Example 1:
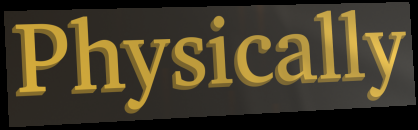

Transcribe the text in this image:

Physically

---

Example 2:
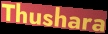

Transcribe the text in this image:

Thushara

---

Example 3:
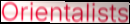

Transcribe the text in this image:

Orientalists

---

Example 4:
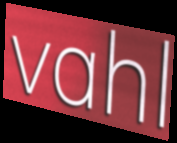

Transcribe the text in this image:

vahl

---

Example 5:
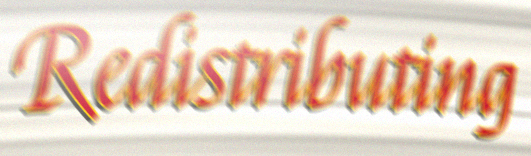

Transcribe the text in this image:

Redistributing